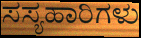
ಸಸ್ಯಹಾರಿಗಳು